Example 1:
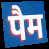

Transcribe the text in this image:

पैम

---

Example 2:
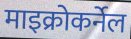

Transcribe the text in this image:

माइक्रोकर्नेल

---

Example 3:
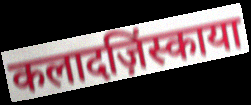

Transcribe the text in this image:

कलादज़िंस्काया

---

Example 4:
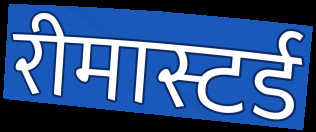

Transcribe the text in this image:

रीमास्टर्ड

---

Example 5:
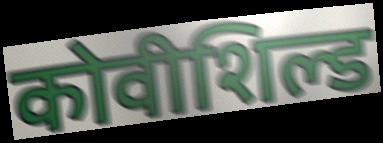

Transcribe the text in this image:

कोवीशिल्ड